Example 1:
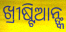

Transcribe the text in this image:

ଖ୍ରୀଷ୍ଟିଆନ୍ଙ୍କ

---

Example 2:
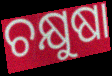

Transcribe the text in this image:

ଚକ୍ଷୁଷା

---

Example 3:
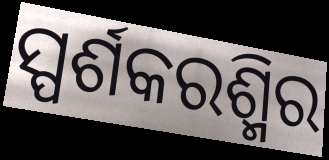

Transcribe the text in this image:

ସ୍ପର୍ଶକରଶ୍ମିର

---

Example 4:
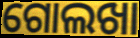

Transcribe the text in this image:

ଗୋଲଖା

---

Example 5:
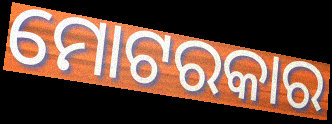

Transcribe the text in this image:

ମୋଟରକାର